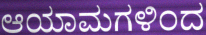
ಆಯಾಮಗಳಿಂದ